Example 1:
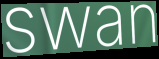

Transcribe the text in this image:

swan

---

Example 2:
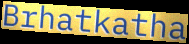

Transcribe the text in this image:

Brhatkatha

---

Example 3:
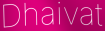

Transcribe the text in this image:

Dhaivat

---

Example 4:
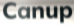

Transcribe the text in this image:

Canup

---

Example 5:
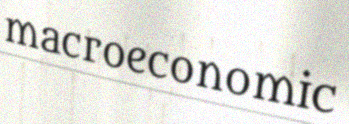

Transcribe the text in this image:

macroeconomic